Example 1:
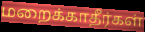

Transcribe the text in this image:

மறைக்காதீர்கள்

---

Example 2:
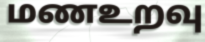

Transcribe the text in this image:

மணஉறவு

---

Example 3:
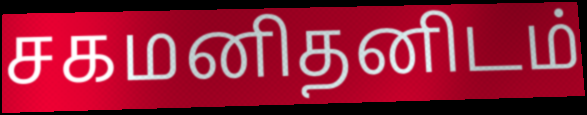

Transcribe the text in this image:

சகமனிதனிடம்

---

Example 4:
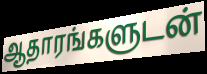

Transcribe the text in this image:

ஆதாரங்களுடன்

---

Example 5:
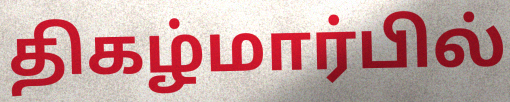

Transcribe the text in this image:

திகழ்மார்பில்